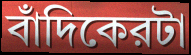
বাঁদিকেরটা